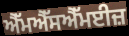
ਐੱਮਐੱਸਐੱਮਈਜ਼